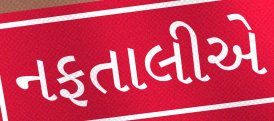
નફતાલીએ